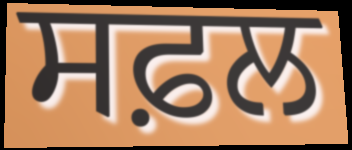
ਸਫ਼ਲ